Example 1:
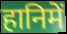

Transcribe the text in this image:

हानिमें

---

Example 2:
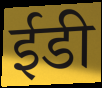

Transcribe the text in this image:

ईडी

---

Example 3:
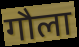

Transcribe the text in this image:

गौला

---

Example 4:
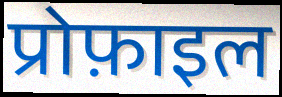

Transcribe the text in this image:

प्रोफ़ाइल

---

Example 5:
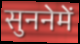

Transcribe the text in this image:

सुननेमें